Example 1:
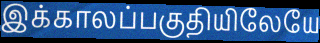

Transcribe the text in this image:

இக்காலப்பகுதியிலேயே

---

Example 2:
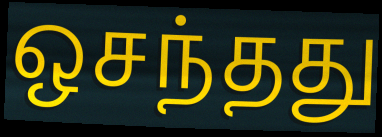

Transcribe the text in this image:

ஒசந்தது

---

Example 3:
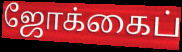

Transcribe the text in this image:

ஜோக்கைப்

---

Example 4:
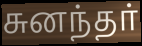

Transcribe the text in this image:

சுனந்தர்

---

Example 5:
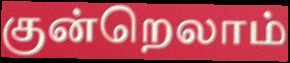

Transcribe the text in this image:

குன்றெலாம்